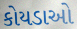
કોયડાઓ